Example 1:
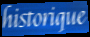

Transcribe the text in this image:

historique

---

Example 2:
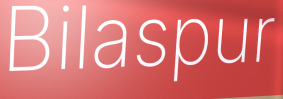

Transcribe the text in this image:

Bilaspur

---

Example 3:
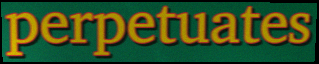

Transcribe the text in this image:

perpetuates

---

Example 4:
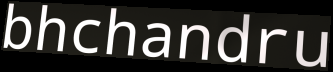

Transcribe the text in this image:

bhchandru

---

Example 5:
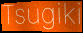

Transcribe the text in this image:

Tsugiki